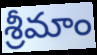
శ్రీమాం